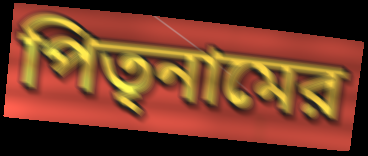
পিতৃনামের